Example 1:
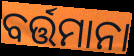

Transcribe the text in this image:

ବର୍ତ୍ତମାନା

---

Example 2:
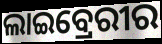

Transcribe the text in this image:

ଲାଇବ୍ରେରୀର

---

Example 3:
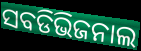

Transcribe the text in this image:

ସବଡିଭିଜନାଲ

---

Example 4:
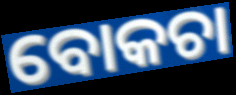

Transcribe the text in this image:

ବୋକଚା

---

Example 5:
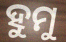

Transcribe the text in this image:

ହୁମୁ